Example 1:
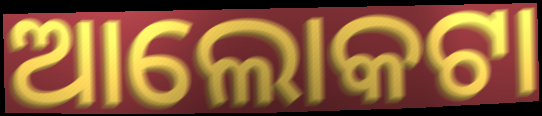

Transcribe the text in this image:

ଆଲୋକଟା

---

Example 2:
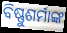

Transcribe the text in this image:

ବିଷ୍ଣୁଶର୍ମାଙ୍କ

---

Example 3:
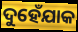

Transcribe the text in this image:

ଦୁହେଁଯାକ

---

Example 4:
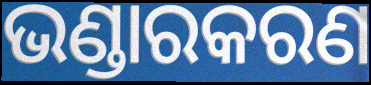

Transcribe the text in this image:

ଭଣ୍ଡାରକରଣ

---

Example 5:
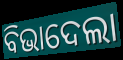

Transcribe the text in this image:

ବିଭାଦେଲା